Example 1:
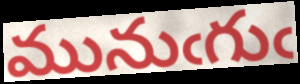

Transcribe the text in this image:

మునుఁగుఁ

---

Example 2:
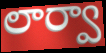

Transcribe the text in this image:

లార్వా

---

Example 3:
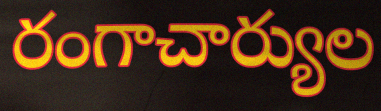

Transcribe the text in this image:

రంగాచార్యుల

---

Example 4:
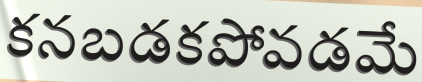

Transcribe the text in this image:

కనబడకపోవడమే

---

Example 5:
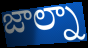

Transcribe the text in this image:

జాల్నా